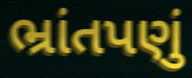
ભ્રાંતપણું